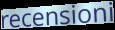
recensioni